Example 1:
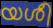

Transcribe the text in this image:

യശീ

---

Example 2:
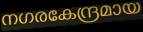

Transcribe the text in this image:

നഗരകേന്ദ്രമായ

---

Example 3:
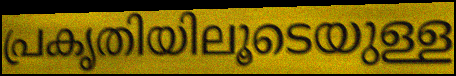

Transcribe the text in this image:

പ്രകൃതിയിലൂടെയുള്ള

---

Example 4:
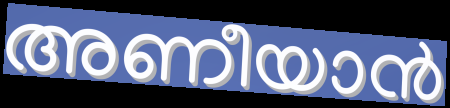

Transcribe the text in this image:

അണീയാൻ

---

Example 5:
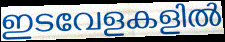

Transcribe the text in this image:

ഇടവേളകളിൽ